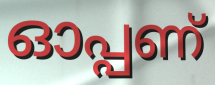
ഓപ്പണ്